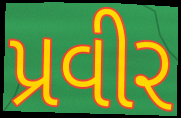
પ્રવીર